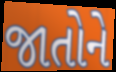
જાતોને